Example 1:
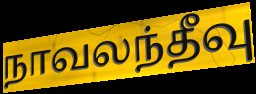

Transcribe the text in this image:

நாவலந்தீவு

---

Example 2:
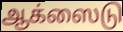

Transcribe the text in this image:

ஆக்ஸைடு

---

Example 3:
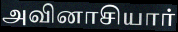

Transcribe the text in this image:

அவினாசியார்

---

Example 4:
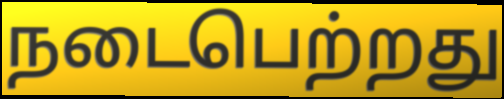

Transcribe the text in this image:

நடைபெற்றது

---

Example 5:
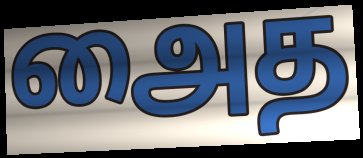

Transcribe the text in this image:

அைத